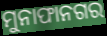
ମୁନାଫାନଗର